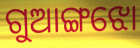
ଗୁଆଙ୍ଗଝୋ